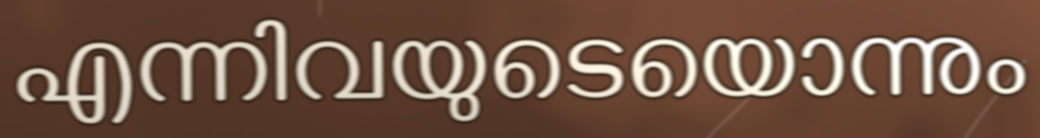
എന്നിവയുടെയൊന്നും